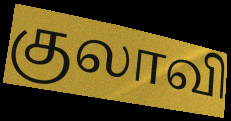
குலாவி